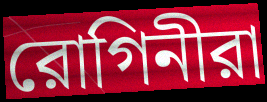
রোগিনীরা